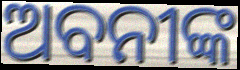
ଅବନୀଙ୍କ